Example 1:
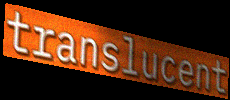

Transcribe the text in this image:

translucent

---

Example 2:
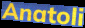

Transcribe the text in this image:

Anatoli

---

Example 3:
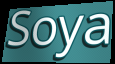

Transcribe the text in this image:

Soya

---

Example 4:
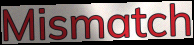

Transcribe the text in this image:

Mismatch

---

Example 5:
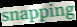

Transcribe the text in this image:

snapping